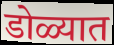
डोळ्यात